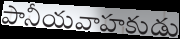
పానీయవాహకుడు